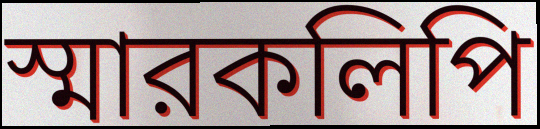
স্মারকলিপি